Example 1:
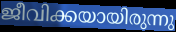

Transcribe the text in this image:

ജീവിക്കയായിരുന്നു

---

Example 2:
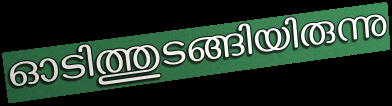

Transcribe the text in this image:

ഓടിത്തുടങ്ങിയിരുന്നു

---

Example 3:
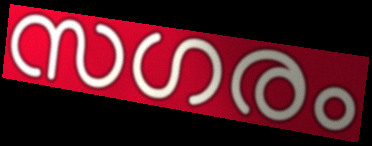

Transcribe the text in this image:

സഗരം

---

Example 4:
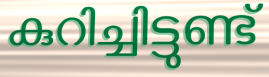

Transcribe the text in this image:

കുറിച്ചിട്ടുണ്ട്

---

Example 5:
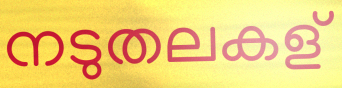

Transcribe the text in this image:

നടുതലകള്